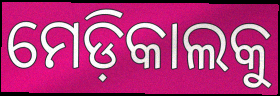
ମେଡ଼ିକାଲକୁ